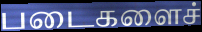
படைகளைச்